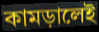
কামড়ালেই